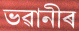
ভৱানীৰ